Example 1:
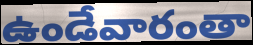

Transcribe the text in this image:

ఉండేవారంతా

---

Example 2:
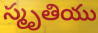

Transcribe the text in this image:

స్మృతియు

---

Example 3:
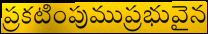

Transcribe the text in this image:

ప్రకటింపుముప్రభువైన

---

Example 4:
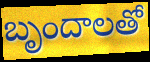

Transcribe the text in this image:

బృందాలతో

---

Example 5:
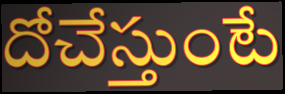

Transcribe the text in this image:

దోచేస్తుంటే